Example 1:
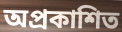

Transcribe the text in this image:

অপ্ৰকাশিত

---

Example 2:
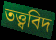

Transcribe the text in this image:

তত্ত্ববিদ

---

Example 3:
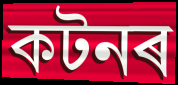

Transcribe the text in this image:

কটনৰ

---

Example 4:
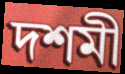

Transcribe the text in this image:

দশমী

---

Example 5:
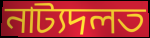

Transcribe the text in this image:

নাট্যদলত